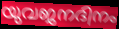
യുവജനദിനം